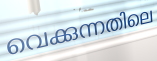
വെക്കുന്നതിലെ